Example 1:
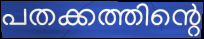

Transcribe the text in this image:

പതക്കത്തിന്റെ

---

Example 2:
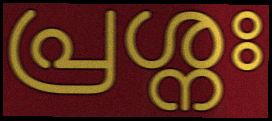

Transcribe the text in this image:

പ്രശ്നഃ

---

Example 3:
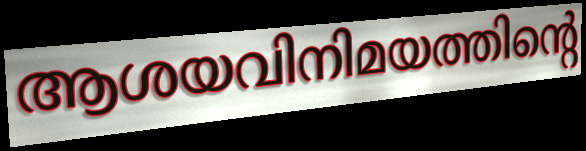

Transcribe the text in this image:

ആശയവിനിമയത്തിന്റെ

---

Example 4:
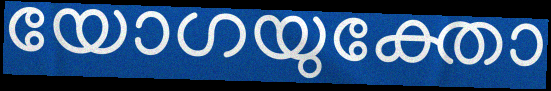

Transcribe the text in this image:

യോഗയുക്തോ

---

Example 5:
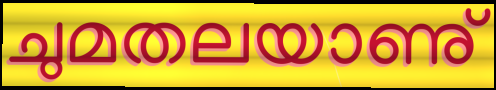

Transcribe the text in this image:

ചുമതലയാണു്